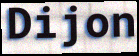
Dijon